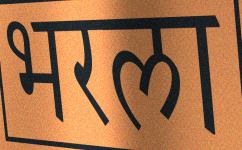
भरला